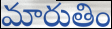
మారుతిం